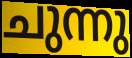
ചുന്നു